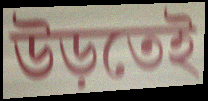
উড়তেই